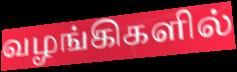
வழங்கிகளில்